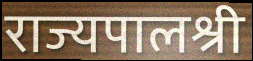
राज्यपालश्री